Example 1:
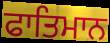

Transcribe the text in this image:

ਫਾਤਿਮਾਨ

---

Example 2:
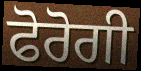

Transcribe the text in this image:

ਫੋਰੋਗੀ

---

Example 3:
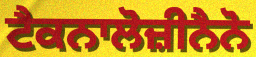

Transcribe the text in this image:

ਟੈਕਨਾਲੋਜ਼ੀਨੈਨੋ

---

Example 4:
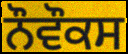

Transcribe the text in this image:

ਨੌਵੌਕਸ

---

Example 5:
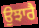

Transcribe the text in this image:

ਉਝਾਰੈ